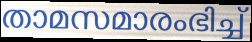
താമസമാരംഭിച്ച്